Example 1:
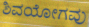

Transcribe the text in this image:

ಶಿವಯೋಗವು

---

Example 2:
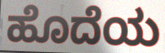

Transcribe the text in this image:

ಹೊದೆಯ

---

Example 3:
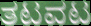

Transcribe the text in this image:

ತಟವಟ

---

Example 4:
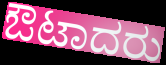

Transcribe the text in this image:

ಔಟಾದರು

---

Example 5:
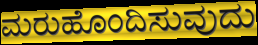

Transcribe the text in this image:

ಮರುಹೊಂದಿಸುವುದು